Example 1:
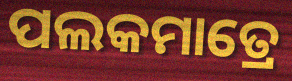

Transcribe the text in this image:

ପଲକମାତ୍ରେ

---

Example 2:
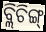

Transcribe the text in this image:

ବ୍ଲିଚିଙ୍ଗ୍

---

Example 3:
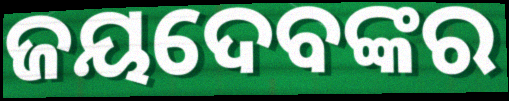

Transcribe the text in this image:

ଜୟଦେବଙ୍କର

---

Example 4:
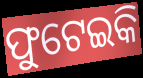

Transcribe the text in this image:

ଫୁଟେଇକି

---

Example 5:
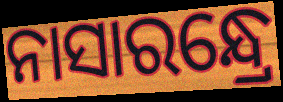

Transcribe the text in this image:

ନାସାରନ୍ଧ୍ରେ